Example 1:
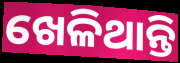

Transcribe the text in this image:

ଖେଳିଥାନ୍ତି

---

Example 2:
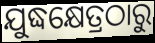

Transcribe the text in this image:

ଯୁଦ୍ଧକ୍ଷେତ୍ରଠାରୁ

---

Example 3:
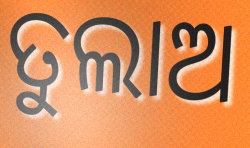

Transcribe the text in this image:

ତୁଲାଅ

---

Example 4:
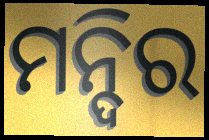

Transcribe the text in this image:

ମନ୍ଦିର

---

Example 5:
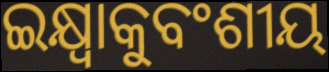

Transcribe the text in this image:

ଇକ୍ଷ୍ୱାକୁବଂଶୀୟ